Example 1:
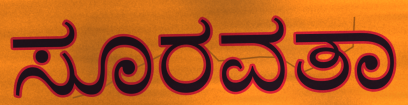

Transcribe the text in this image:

ಸೂರವತಾ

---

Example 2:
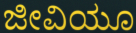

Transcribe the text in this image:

ಜೀವಿಯೂ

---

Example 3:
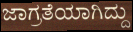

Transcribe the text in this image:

ಜಾಗ್ರತೆಯಾಗಿದ್ದು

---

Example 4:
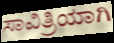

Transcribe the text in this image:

ಸಾವಿತ್ರಿಯಾಗಿ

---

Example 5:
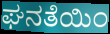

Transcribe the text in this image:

ಘನತೆಯಿಂ